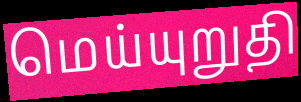
மெய்யுறுதி